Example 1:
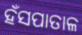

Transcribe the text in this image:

ହଁସପାତାଳ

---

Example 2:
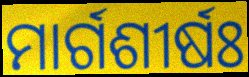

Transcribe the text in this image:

ମାର୍ଗଶୀର୍ଷଃ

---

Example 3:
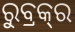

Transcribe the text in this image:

ରୁବ୍ରକ୍‍ର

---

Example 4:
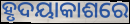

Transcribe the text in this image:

ହୃଦୟାକାଶରେ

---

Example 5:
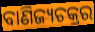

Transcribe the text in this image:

ବାଣିଜ୍ୟଚକ୍ରର